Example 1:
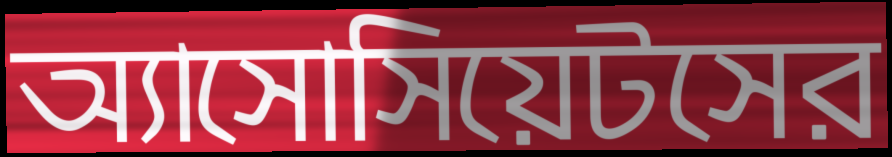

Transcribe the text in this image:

অ্যাসোসিয়েটসের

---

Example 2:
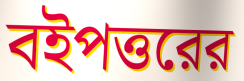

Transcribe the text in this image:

বইপত্তরের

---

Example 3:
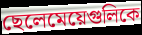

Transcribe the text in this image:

ছেলেমেয়েগুলিকে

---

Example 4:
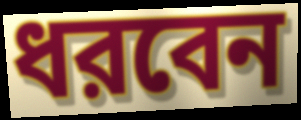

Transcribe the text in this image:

ধরবেন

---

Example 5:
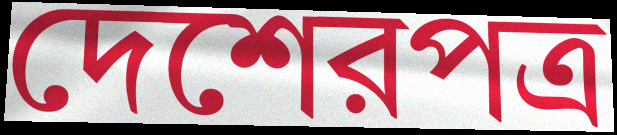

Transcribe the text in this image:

দেশেরপত্র